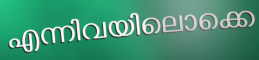
എന്നിവയിലൊക്കെ